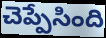
చెప్పేసింది